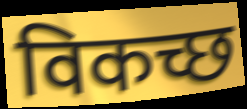
विकच्छ